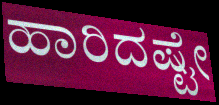
ಹಾರಿದಷ್ಟೇ